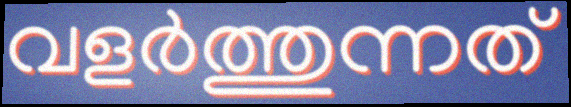
വളർത്തുന്നത്